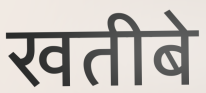
खतीबे